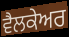
ਵੈਲਕੇਅਰ